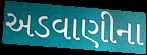
અડવાણીના